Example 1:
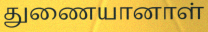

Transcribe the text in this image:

துணையானாள்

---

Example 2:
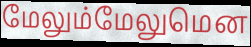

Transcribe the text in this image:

மேலும்மேலுமென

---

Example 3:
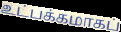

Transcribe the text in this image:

உட்பக்கமாகப்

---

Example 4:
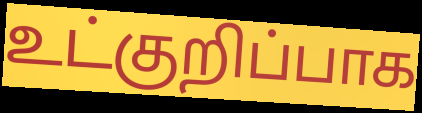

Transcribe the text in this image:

உட்குறிப்பாக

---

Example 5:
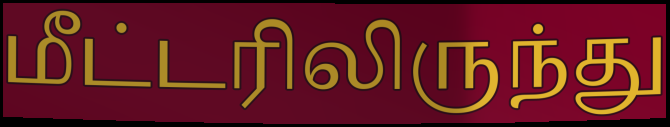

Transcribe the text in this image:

மீட்டரிலிருந்து